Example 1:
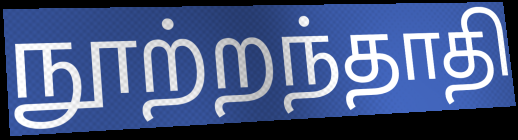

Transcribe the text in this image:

நூற்றந்தாதி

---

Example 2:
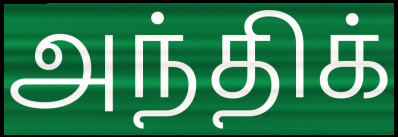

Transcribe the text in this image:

அந்திக்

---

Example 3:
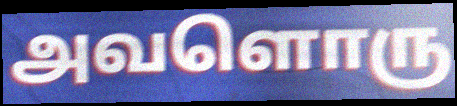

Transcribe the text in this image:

அவளொரு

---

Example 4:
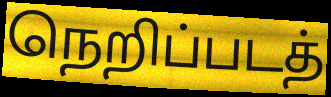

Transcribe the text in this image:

நெறிப்படத்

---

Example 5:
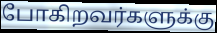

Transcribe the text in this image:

போகிறவர்களுக்கு